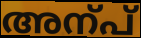
അന്പ്